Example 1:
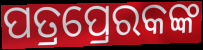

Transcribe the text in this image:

ପତ୍ରପ୍ରେରକଙ୍କ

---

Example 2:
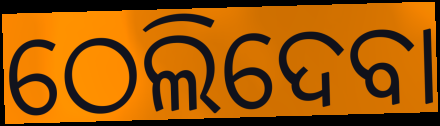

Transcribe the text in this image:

ଠେଲିଦେବା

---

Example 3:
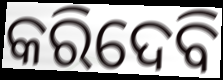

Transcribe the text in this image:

କରିଦେବି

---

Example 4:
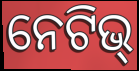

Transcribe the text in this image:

ନେଟିଭ୍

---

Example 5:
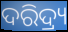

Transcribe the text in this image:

ଦରିଦ୍ର୍ୟ